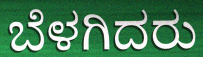
ಬೆಳಗಿದರು